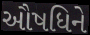
ઔષધિને